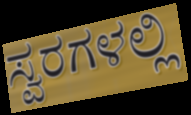
ಸ್ವರಗಳಲ್ಲಿ